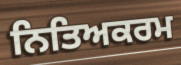
ਨਿਤਿਅਕਰਮ